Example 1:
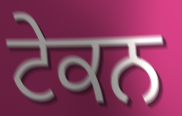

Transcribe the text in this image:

ਟੇਕਨ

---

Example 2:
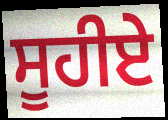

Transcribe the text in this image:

ਸੂਹੀਏ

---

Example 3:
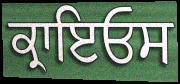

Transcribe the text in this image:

ਕ੍ਰਾਇਓਸ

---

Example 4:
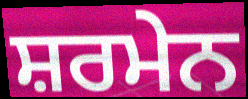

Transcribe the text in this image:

ਸ਼ਰਮੇਨ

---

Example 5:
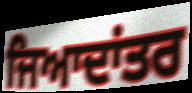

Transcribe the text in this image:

ਜਿਆਦਾਂਤਰ